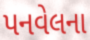
પનવેલના